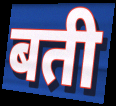
बती